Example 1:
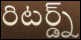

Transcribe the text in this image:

రిటర్డ్న్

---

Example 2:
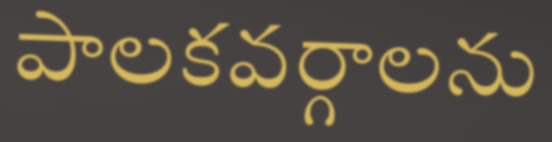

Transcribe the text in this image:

పాలకవర్గాలను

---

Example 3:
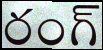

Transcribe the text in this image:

రంగ్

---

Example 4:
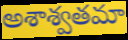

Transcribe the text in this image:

అశాశ్వతమా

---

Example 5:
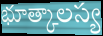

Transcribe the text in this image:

భూత్కాలస్య